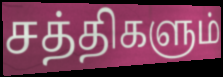
சத்திகளும்